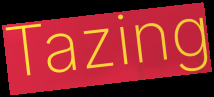
Tazing